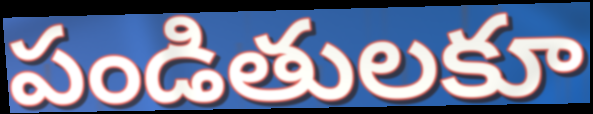
పండితులకూ